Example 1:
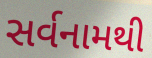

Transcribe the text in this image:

સર્વનામથી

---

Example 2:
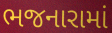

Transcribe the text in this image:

ભજનારામાં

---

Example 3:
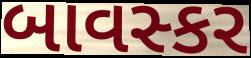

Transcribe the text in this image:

બાવસ્કર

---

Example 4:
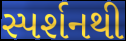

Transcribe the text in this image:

સ્પર્શનથી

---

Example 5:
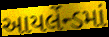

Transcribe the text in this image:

આયર્લેન્ડમાં